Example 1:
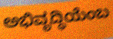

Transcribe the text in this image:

ಅಭಿವೃದ್ಧಿಯೆಂಬ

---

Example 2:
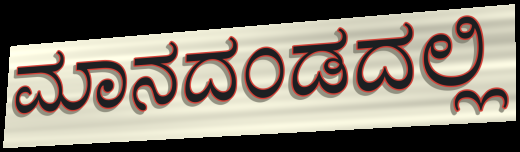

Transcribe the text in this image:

ಮಾನದಂಡದಲ್ಲಿ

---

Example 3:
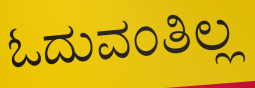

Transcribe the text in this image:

ಓದುವಂತಿಲ್ಲ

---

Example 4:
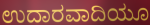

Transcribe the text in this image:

ಉದಾರವಾದಿಯೂ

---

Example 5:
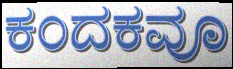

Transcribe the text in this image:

ಕಂದಕವೂ